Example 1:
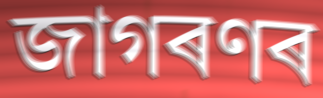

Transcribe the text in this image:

জাগৰণৰ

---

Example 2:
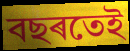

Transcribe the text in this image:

বছৰতেই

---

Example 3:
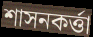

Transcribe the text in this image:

শাসনকৰ্ত্তা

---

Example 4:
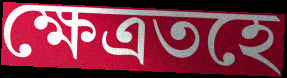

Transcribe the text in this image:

ক্ষেত্ৰতহে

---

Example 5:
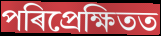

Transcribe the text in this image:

পৰিপ্ৰেক্ষিতত